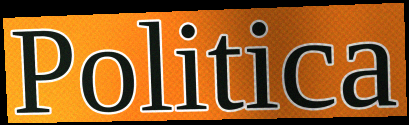
Politica